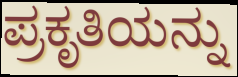
ಪ್ರಕೃತಿಯನ್ನು